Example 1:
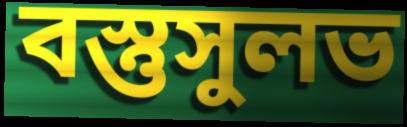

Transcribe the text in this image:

বস্তুসুলভ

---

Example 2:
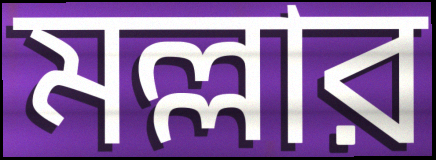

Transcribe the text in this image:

মল্লার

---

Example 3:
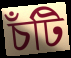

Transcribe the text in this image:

চঁটি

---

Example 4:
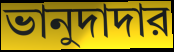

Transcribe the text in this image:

ভানুদাদার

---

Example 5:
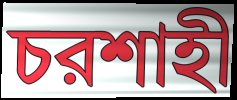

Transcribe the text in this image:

চরশাহী